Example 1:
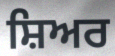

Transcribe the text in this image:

ਸ਼ਿਅਰ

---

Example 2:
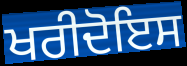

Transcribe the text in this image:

ਖਰੀਦੋਇਸ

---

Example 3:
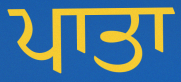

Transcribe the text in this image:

ਪਾਤਾ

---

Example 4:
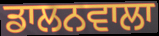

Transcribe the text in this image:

ਡਾਲਨਵਾਲਾ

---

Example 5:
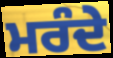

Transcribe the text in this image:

ਮਰੰਦੇ